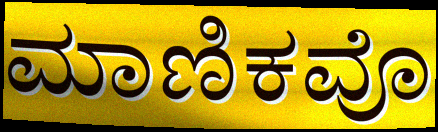
ಮಾಣಿಕವೊ